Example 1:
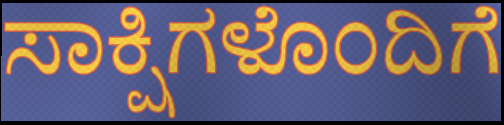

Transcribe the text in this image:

ಸಾಕ್ಷಿಗಳೊಂದಿಗೆ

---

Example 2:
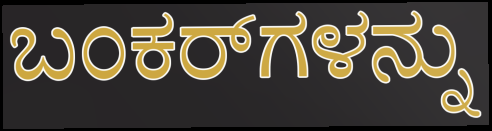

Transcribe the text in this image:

ಬಂಕರ್‌ಗಳನ್ನು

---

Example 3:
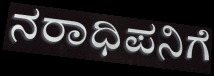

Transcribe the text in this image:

ನರಾಧಿಪನಿಗೆ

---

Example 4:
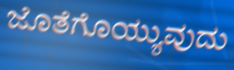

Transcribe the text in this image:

ಜೊತೆಗೊಯ್ಯುವುದು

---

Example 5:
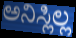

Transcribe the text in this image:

ಅನಿಸ್ಲಿಲ್ಲ